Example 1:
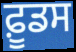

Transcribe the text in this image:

ਫ਼ੂਡਸ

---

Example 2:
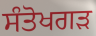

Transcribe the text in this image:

ਸੰਤੋਖਗੜ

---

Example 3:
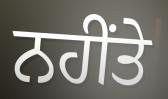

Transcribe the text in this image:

ਨਹੀਂਤੇ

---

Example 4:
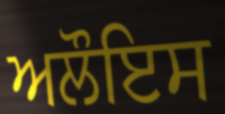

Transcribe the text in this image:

ਅਲੌਇਸ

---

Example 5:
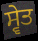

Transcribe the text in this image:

ਸ੍ਵੇਤ